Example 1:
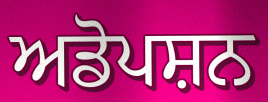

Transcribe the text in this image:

ਅਡੋਪਸ਼ਨ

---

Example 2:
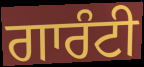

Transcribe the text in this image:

ਗਾਰੰਟੀ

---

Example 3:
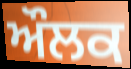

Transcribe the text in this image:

ਔਲਕ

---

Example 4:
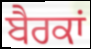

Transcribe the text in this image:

ਬੈਰਕਾਂ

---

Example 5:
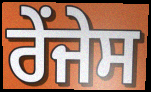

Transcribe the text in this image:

ਰੇਂਜੇਸ